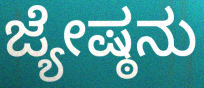
ಜ್ಯೇಷ್ಠನು